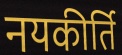
नयकीर्ति